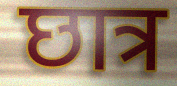
छात्र